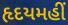
હૃદયમહીં